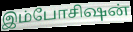
இம்போசிஷன்